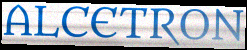
ALCETRON